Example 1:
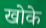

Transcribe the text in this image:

खोके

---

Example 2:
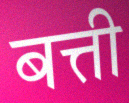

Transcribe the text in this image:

बत्ती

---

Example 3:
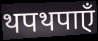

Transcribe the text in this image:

थपथपाएँ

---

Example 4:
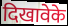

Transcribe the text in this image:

दिखावेके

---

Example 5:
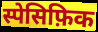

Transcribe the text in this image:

स्पेसिफ़िक